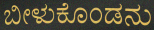
ಬೀಳುಕೊಂಡನು